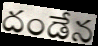
దండేన